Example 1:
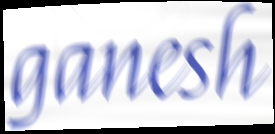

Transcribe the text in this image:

ganesh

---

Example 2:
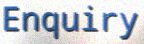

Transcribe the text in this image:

Enquiry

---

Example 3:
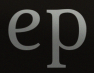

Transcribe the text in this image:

ep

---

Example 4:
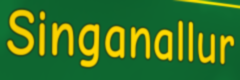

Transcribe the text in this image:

Singanallur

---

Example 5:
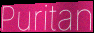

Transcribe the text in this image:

Puritan